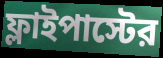
ফ্লাইপাস্টের